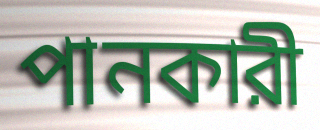
পানকারী